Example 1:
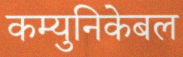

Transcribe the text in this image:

कम्युनिकेबल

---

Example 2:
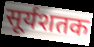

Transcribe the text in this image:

सूर्यशतक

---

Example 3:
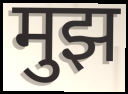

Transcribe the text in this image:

मुझ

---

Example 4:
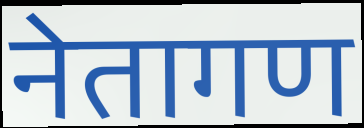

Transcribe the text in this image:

नेतागण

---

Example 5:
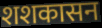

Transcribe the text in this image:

शशकासन